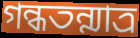
গন্ধতন্মাত্র